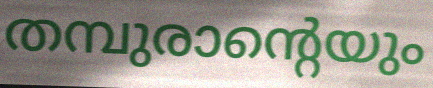
തമ്പുരാന്റെയും